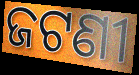
ଜଟଣୀ